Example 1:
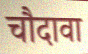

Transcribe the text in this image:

चौदावा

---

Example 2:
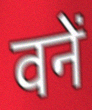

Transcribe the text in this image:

वनें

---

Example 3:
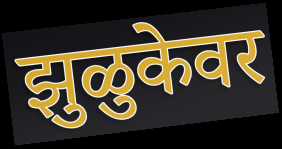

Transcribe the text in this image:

झुळुकेवर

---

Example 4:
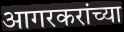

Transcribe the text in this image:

आगरकरांच्या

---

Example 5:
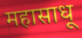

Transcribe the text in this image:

महासाधू